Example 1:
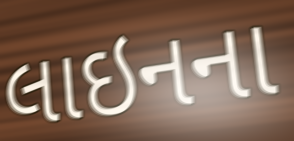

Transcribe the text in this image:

લાઇનના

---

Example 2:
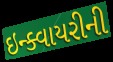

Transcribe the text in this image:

ઇન્ક્વાયરીની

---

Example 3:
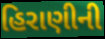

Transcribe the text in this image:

હિરાણીની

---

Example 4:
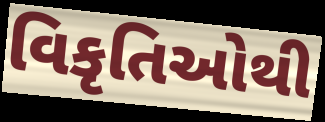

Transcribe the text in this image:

વિકૃતિઓથી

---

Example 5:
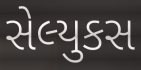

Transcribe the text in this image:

સેલ્યુકસ